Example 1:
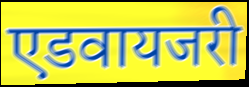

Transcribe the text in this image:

एडवायजरी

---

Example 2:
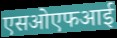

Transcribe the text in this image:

एसओएफआई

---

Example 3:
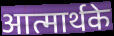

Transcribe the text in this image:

आत्मार्थके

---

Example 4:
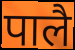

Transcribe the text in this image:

पालै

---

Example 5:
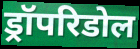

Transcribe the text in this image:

ड्रॉपरिडोल